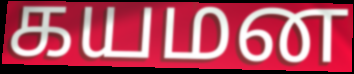
கயமன